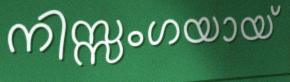
നിസ്സംഗയായ്